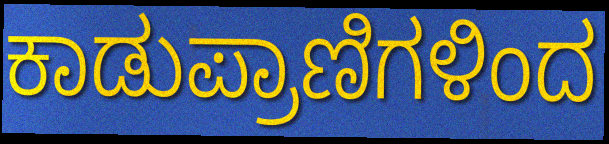
ಕಾಡುಪ್ರಾಣಿಗಳಿಂದ